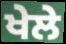
ਖੇਲੇ